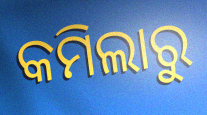
କମିଲାରୁ